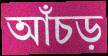
আঁচড়